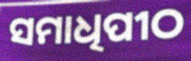
ସମାଧିପୀଠ